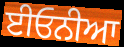
ਈਓਨੀਆ